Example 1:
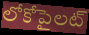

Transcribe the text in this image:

లోకోపైలట్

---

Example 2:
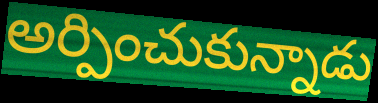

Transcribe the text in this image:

అర్పించుకున్నాడు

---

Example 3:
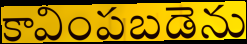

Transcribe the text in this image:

కావింపబడెను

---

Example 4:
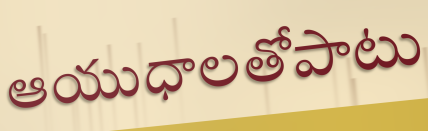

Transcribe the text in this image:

ఆయుధాలతోపాటు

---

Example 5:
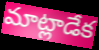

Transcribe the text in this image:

మాట్లాడేక